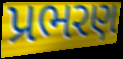
પ્રભરણ